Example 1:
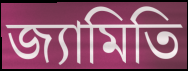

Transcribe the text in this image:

জ্যামিতি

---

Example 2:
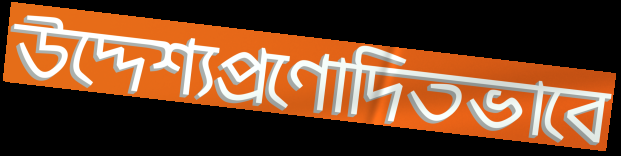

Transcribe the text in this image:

উদ্দেশ্যপ্রণোদিতভাবে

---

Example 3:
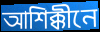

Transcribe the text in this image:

আশিক্কীনে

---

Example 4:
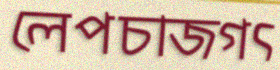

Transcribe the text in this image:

লেপচাজগৎ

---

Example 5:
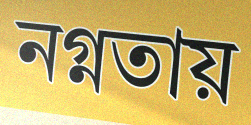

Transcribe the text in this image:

নগ্নতায়